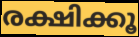
രക്ഷിക്കൂ